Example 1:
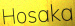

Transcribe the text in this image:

Hosaka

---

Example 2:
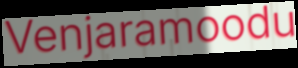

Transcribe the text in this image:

Venjaramoodu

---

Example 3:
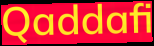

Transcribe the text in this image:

Qaddafi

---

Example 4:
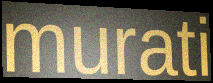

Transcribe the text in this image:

murati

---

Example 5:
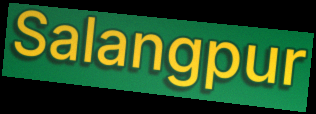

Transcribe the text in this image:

Salangpur